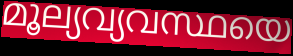
മൂല്യവ്യവസ്ഥയെ